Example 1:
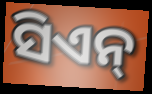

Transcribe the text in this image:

ସିଏନ୍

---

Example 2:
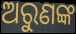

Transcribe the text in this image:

ଅରୁଣଙ୍କ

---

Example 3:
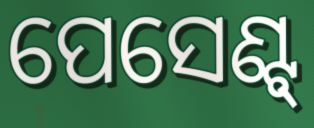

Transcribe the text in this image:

ପେସେଣ୍ଟ୍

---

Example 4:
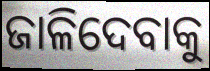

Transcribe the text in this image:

ଜାଳିଦେବାକୁ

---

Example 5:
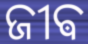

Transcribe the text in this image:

ଜୀଵ